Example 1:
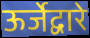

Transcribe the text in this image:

ऊर्जेद्वारे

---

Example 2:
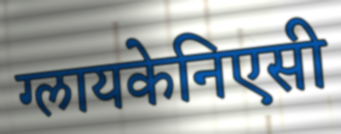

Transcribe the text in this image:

ग्लायकेनिएसी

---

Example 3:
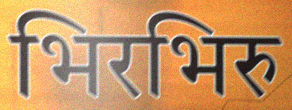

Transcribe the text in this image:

भिरभिरु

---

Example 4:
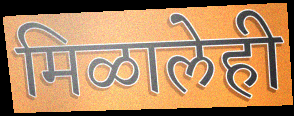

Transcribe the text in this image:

मिळालेही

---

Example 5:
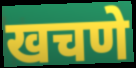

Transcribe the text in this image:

खचणे